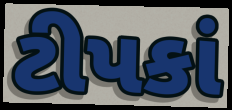
ટીપકાં